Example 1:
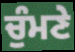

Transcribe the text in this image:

ਚੁੰਮਣੇ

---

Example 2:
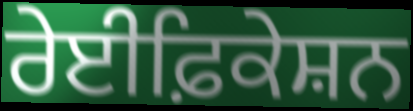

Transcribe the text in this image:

ਰੇਈਫ਼ਿਕੇਸ਼ਨ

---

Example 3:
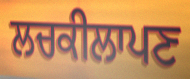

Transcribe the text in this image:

ਲਚਕੀਲਾਪਣ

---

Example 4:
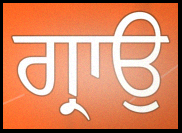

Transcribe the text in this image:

ਗ੍ਰਾਉ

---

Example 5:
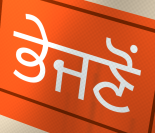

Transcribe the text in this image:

ਭੇਜਣੋਂ